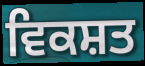
ਵਿਕਸ਼ਤ